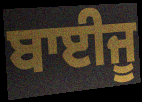
ਬਾਈਜੂ